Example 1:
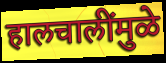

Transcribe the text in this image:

हालचालींमुळे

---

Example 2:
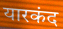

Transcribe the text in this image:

यारकंद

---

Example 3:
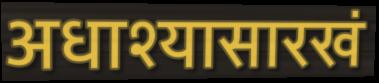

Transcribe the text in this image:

अधाश्यासारखं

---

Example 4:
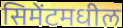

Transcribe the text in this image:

सिमेंटमधील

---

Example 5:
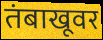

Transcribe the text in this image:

तंबाखूवर